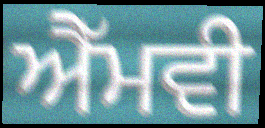
ਐੱਮਵੀ